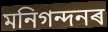
মনিগন্দনৰ